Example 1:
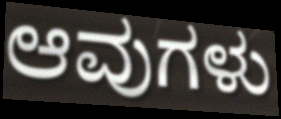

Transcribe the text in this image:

ಆವುಗಳು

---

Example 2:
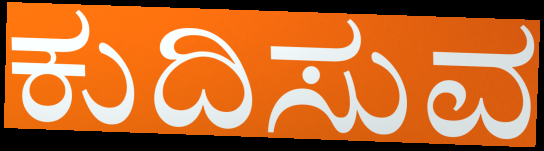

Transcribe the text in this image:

ಕುದಿಸುವ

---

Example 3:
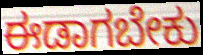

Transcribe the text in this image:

ಈಡಾಗಬೇಕು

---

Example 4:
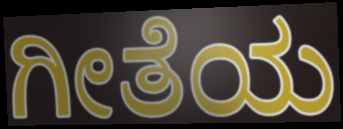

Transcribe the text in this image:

ಗೀತೆಯ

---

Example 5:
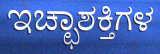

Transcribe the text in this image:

ಇಚ್ಛಾಶಕ್ತಿಗಳ